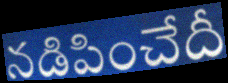
నడిపించేదీ